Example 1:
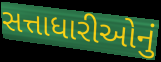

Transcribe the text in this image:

સત્તાધારીઓનું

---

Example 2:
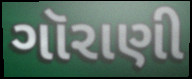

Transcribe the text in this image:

ગૉરાણી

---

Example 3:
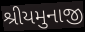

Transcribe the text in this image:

શ્રીયમુનાજી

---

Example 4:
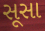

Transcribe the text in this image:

સૂસા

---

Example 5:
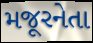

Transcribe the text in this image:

મજૂરનેતા